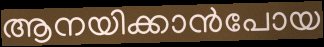
ആനയിക്കാൻപോയ